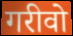
गरीवो